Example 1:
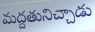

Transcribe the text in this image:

మద్దతునిచ్చాడు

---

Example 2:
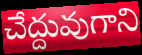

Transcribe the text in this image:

చేద్దువుగాని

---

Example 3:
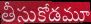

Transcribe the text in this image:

తీసుకోడమూ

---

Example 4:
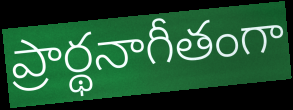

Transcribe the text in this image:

ప్రార్థనాగీతంగా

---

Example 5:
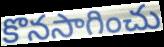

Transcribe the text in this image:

కొనసాగించు